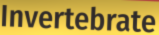
Invertebrate